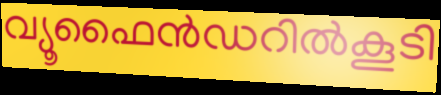
വ്യൂഫൈൻഡറിൽകൂടി